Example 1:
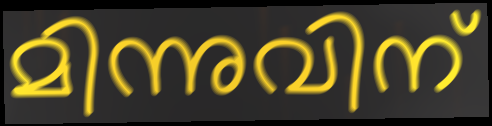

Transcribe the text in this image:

മിന്നുവിന്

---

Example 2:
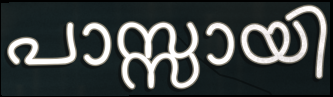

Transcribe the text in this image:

പാസ്സായി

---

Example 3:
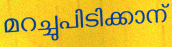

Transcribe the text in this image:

മറച്ചുപിടിക്കാന്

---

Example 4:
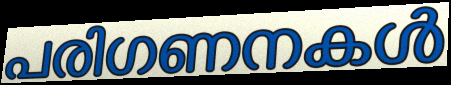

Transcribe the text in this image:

പരിഗണനകൾ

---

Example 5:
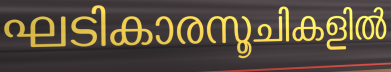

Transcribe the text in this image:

ഘടികാരസൂചികളിൽ